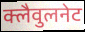
क्लैवुलनेट